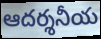
ఆదర్శనీయ